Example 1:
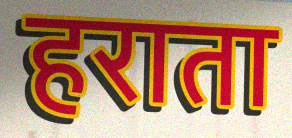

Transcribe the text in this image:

हराता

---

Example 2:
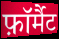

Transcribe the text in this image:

फ़ॉर्मैट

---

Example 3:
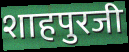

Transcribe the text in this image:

शाहपुरजी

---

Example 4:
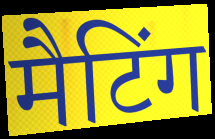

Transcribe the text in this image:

मैटिंग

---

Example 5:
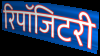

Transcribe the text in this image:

रिपॉजिटरी